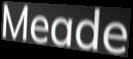
Meade